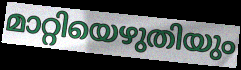
മാറ്റിയെഴുതിയും